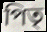
পিতৃ